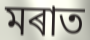
মৰাত